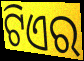
ଟିଏର